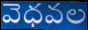
వెధవల